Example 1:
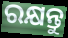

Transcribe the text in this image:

ରକ୍ଷନ୍ତୁ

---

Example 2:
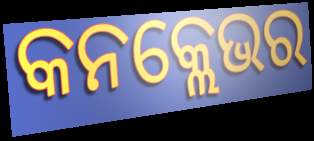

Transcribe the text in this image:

କନକ୍ଲେଭର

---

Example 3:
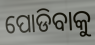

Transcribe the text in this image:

ପୋଡିବାକୁ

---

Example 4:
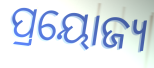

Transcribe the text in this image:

ପ୍ରୟୋଜ୍ୟ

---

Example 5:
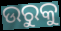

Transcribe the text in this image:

ଉରୁକୁ